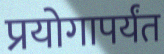
प्रयोगापर्यंत